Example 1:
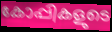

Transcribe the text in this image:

കോപ്പികളുടെ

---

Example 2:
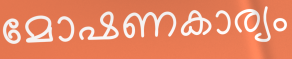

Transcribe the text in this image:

മോഷണകാര്യം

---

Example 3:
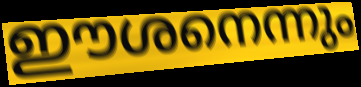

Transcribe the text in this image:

ഈശനെന്നും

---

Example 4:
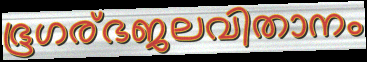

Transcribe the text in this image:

ഭൂഗര്ഭജലവിതാനം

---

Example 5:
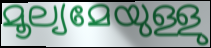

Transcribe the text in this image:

മൂല്യമേയുള്ളു